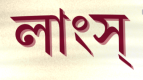
লাংস্